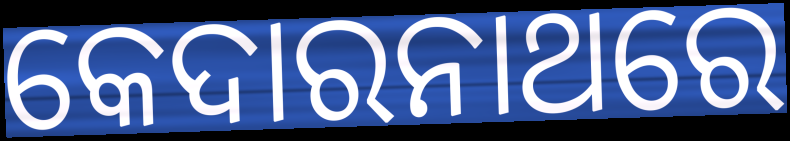
କେଦାରନାଥରେ